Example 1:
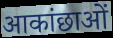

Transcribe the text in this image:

आकांछाओं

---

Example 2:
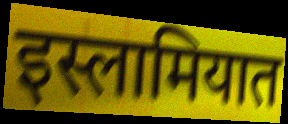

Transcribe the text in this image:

इस्लामियात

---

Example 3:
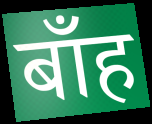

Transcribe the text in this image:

बाँह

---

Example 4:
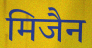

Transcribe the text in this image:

मिजैन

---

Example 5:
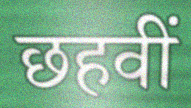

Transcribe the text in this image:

छहवीं